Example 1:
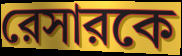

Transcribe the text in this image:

রেসারকে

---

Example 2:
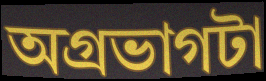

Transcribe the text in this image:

অগ্রভাগটা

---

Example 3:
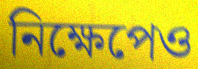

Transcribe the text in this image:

নিক্ষেপেও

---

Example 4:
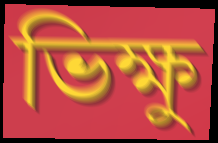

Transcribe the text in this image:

ভিক্ষু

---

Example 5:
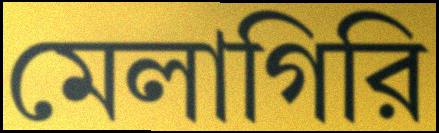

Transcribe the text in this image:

মেলাগিরি